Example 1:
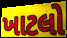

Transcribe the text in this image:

ખાટલો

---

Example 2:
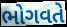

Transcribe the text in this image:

ભોગવતે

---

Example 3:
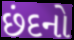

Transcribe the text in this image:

છંદનો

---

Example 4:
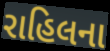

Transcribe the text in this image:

રાહિલના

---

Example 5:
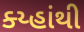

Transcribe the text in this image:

ક્ય્હાંથી